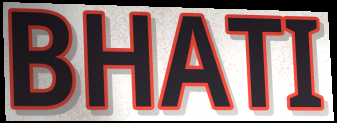
BHATI